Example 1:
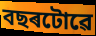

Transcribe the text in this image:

বছৰটোৱে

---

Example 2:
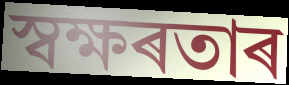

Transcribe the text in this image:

স্বক্ষৰতাৰ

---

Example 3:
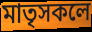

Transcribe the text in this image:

মাতৃসকলে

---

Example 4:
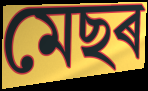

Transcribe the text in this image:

মেছৰ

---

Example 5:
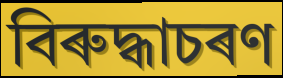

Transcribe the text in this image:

বিৰুদ্ধাচৰণ